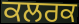
ਕਲਰਕ